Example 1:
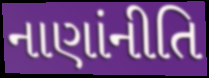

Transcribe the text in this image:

નાણાંનીતિ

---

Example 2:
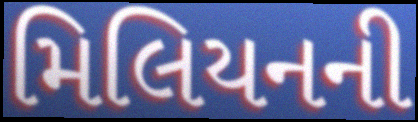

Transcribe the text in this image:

મિલિયનની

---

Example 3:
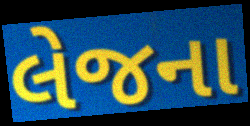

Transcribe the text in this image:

લેજના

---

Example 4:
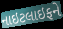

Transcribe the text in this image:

નાઇટલાઇફને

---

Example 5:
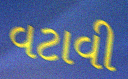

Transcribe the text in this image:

વટાવી